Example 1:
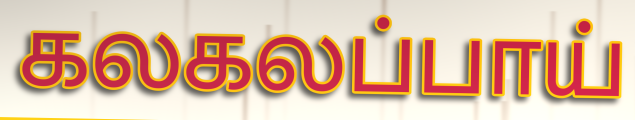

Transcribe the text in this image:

கலகலப்பாய்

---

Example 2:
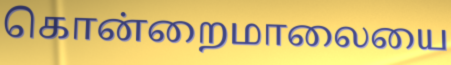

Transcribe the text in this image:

கொன்றைமாலையை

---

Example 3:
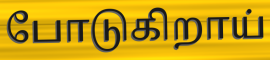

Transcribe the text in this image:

போடுகிறாய்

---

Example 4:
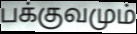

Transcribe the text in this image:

பக்குவமும்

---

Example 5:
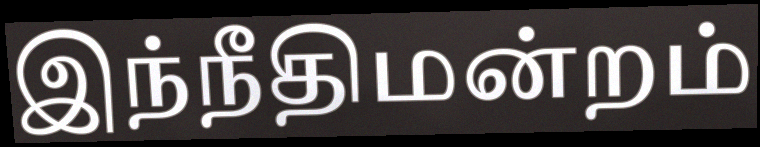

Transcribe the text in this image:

இந்நீதிமன்றம்